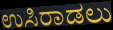
ಉಸಿರಾಡಲು